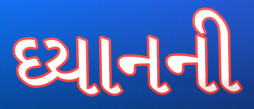
ઘ્યાનની